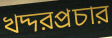
খদ্দরপ্রচার